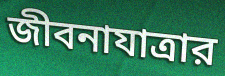
জীবনাযাত্রার